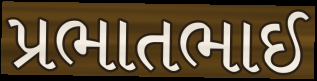
પ્રભાતભાઈ